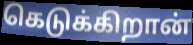
கெடுக்கிறான்